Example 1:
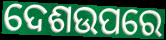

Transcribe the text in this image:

ଦେଶଉପରେ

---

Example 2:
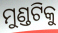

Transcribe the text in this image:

ମୁଣ୍ଡଟିକୁ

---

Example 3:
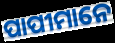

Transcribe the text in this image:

ପାପୀମାନେ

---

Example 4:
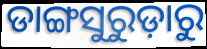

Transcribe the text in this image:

ଡାଙ୍ଗସୁରୁଡ଼ାରୁ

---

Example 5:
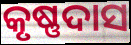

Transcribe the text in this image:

କୃଷ୍ଣଦାସ